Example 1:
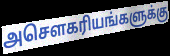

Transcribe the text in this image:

அசௌகரியங்களுக்கு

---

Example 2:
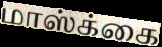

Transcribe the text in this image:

மாஸ்க்கை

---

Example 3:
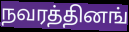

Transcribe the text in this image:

நவரத்தினங்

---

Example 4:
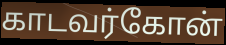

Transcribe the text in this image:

காடவர்கோன்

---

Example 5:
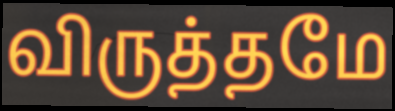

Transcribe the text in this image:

விருத்தமே